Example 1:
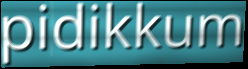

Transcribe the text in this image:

pidikkum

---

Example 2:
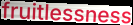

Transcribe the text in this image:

fruitlessness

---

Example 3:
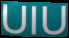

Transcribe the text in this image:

UIU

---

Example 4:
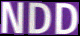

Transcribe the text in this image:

NDD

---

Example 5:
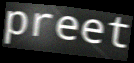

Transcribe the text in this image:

preet